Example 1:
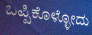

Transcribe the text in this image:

ಒಪ್ಪಿಕೊಳ್ಳೋದು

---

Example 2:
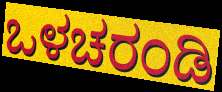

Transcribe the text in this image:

ಒಳಚರಂಡಿ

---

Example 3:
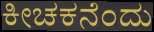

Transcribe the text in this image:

ಕೀಚಕನೆಂದು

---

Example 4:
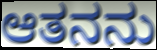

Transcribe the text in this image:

ಆತನನು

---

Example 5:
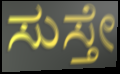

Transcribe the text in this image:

ಸುಸ್ತೇ